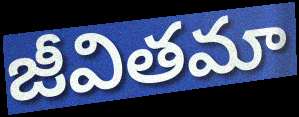
జీవితమా